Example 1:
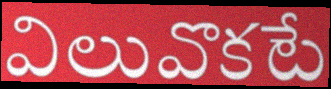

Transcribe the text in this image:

విలువొకటే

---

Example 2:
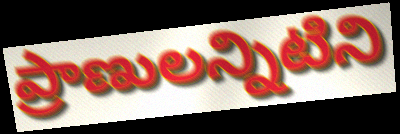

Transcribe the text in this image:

ప్రాణులన్నిటిని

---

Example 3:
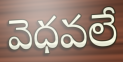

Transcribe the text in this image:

వెధవలే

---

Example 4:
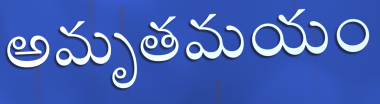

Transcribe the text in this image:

అమృతమయం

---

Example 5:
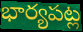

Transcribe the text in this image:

భార్యపట్ల